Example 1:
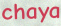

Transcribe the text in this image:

chaya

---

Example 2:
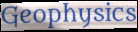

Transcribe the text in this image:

Geophysics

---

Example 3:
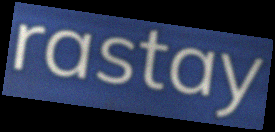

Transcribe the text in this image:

rastay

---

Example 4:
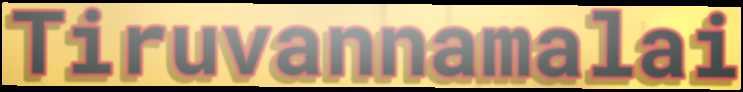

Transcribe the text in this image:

Tiruvannamalai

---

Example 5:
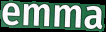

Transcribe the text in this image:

emma